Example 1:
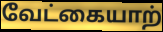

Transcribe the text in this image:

வேட்கையாற்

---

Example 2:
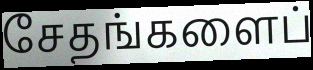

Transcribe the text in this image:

சேதங்களைப்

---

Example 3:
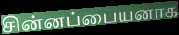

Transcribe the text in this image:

சின்னப்பையனாக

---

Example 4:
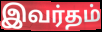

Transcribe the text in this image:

இவர்தம்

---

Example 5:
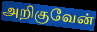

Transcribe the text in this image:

அறிகுவேன்